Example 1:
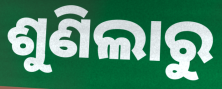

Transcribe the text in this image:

ଶୁଣିଲାରୁ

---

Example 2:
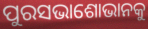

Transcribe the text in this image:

ପୁରସଭାଶୋଭାନକୁ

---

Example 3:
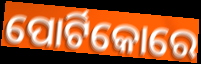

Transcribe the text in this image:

ପୋର୍ଟିକୋରେ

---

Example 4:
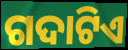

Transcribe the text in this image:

ଗଦାଟିଏ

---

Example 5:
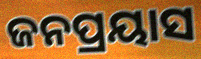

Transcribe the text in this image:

ଜନପ୍ରୟାସ